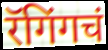
रॅगिंगचं